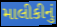
માલીકીનું